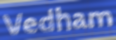
Vedham